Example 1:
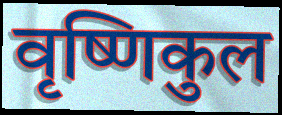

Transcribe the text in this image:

वृष्णिकुल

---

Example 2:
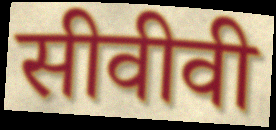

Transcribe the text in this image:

सीवीवी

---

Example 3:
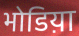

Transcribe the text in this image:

भोडिय़ा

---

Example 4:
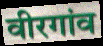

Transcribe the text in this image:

वीरगांव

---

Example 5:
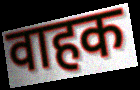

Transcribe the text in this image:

वाहक